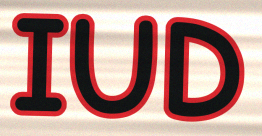
IUD